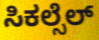
ಸಿಕಲ್ಸೆಲ್